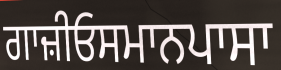
ਗਾਜ਼ੀਓਸਮਾਨਪਾਸਾ